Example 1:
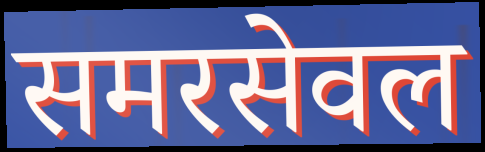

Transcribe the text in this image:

समरसेवल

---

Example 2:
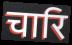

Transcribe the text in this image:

चारि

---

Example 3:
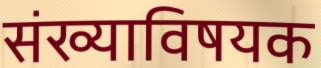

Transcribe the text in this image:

संख्याविषयक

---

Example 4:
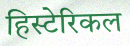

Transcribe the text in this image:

हिस्टेरिकल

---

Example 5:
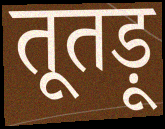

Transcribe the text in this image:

तूतड़ू